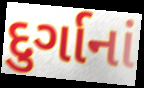
દુર્ગાનાં